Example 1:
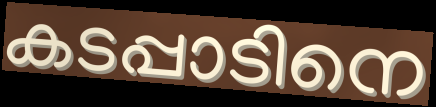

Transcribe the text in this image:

കടപ്പാടിനെ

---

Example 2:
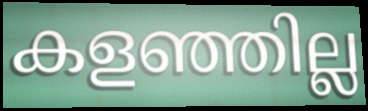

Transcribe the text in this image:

കളഞ്ഞില്ല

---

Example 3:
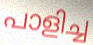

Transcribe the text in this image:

പാളിച്ച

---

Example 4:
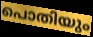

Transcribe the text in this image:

പൊതിയും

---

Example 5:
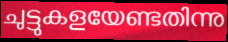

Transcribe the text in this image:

ചുട്ടുകളയേണ്ടതിന്നു